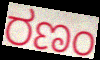
ರಣಂ